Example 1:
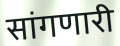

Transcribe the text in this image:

सांगणारी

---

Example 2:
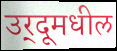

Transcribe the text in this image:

उर्दूमधील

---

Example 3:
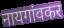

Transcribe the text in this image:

नायगांवकर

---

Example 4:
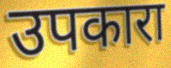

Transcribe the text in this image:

उपकारा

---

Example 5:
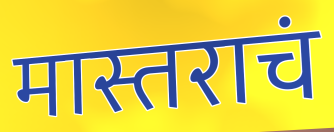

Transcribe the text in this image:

मास्तराचं